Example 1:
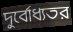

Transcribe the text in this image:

দুর্বোধ্যতর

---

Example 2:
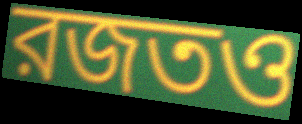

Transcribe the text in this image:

রজতও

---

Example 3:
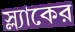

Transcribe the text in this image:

স্ল্যাকের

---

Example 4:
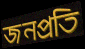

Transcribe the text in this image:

জনপ্রতি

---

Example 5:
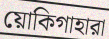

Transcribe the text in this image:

য়োকিগাহারা